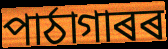
পাঠাগাৰৰ